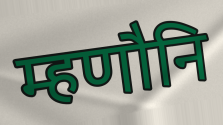
म्हणौनि